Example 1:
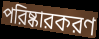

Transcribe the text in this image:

পরিষ্কারকরণ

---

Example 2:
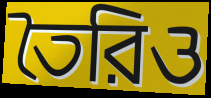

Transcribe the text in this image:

তৈরিও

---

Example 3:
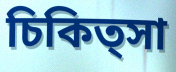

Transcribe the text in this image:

চিকিত্সা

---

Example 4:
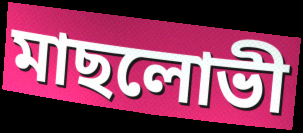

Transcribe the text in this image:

মাছলোভী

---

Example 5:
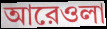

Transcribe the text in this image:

আরেওলা